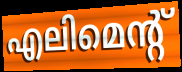
എലിമെന്റ്